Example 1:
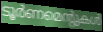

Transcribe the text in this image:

ടൂർണമെന്റുകൾ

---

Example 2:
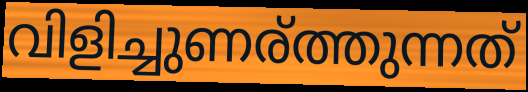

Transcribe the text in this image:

വിളിച്ചുണര്ത്തുന്നത്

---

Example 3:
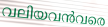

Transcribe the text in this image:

വലിയവൻവരെ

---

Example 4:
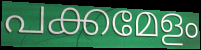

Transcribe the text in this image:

പക്കമേളം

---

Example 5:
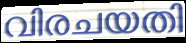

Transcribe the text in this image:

വിരചയതി